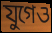
যুগেও